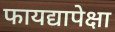
फायद्यापेक्षा